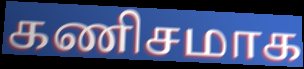
கணிசமாக